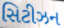
સિટીઝન